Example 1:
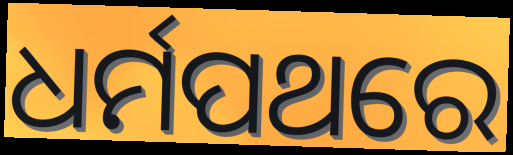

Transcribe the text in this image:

ଧର୍ମପଥରେ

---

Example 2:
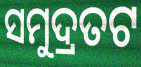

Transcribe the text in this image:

ସମୁଦ୍ରତଟ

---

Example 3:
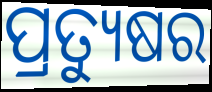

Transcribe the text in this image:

ପ୍ରତ୍ୟୁଷର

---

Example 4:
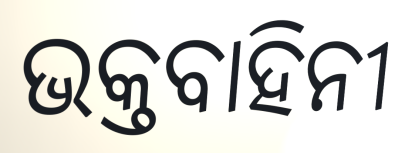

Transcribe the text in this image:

ଭକ୍ତବାହିନୀ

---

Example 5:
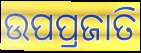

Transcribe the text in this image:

ଉପପ୍ରଜାତି